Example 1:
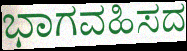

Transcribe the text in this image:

ಭಾಗವಹಿಸದ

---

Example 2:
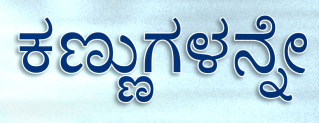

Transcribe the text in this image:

ಕಣ್ಣುಗಳನ್ನೇ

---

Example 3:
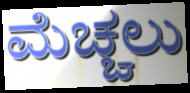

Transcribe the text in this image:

ಮೆಚ್ಚಲು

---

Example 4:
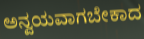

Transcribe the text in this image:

ಅನ್ವಯವಾಗಬೇಕಾದ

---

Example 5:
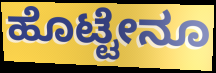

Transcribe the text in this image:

ಹೊಟ್ಟೇನೂ